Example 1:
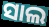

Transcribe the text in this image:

ସାଲ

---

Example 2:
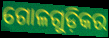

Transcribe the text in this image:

ଗୋଳଗୁଡ଼ିକର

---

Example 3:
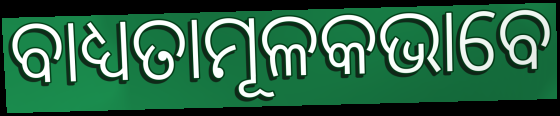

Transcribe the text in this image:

ବାଧ୍ୟତାମୂଳକଭାବେ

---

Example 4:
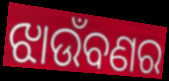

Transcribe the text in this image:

ଝାଉଁବଣର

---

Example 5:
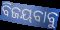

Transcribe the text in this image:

ବିଜୟବାବୁ